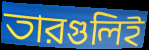
তারগুলিই